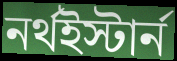
নর্থইস্টার্ন